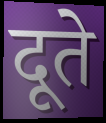
दूते